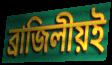
ব্রাজিলীয়ই